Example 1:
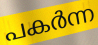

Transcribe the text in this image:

പകർന്ന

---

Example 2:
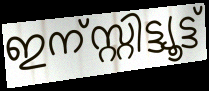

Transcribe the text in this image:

ഇന്സ്റ്റിട്ട്യൂട്ട്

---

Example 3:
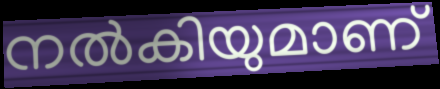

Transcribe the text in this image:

നൽകിയുമാണ്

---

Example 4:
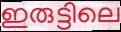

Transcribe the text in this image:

ഇരുട്ടിലെ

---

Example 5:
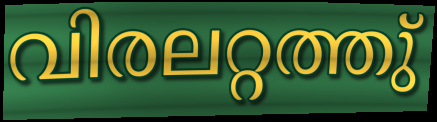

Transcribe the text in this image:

വിരലറ്റത്തു്